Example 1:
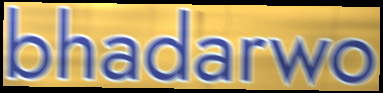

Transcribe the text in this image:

bhadarwo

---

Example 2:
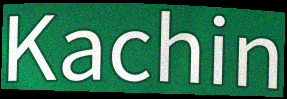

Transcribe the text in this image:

Kachin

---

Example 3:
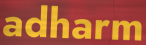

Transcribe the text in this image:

adharm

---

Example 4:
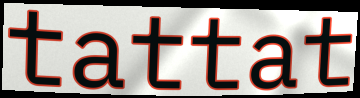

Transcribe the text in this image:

tattat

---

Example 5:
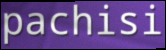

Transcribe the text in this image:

pachisi